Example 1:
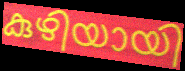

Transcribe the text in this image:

കുഴിയായി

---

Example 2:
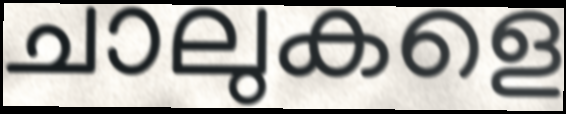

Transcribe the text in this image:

ചാലുകളെ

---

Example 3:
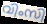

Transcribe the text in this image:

വിംസി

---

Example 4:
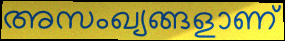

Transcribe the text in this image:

അസംഖ്യങ്ങളാണ്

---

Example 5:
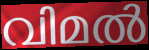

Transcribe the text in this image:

വിമൽ